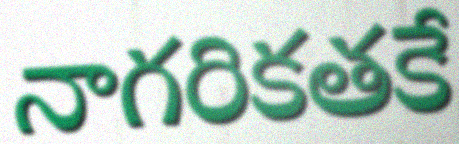
నాగరికతకే